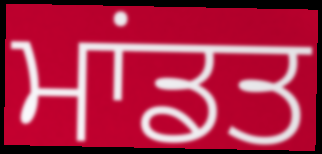
ਮਾਂਡਤ